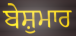
ਬੇਸ਼ੁਮਾਰ